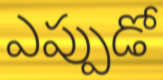
ఎప్పుడో